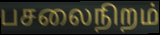
பசலைநிறம்